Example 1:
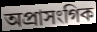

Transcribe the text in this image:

অপ্ৰাসংগিক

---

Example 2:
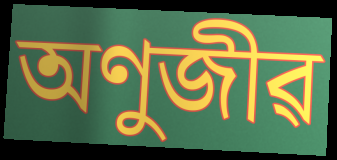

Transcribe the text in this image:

অণুজীৱ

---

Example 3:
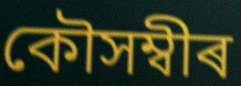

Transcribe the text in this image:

কৌসম্বীৰ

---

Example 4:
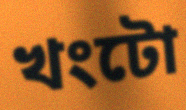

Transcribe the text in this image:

খংটো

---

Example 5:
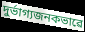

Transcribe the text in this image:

দুৰ্ভাগ্যজনকভাৱে